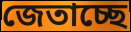
জেতাচ্ছে